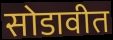
सोडावीत